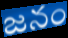
జనం